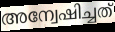
അന്വേഷിച്ചത്